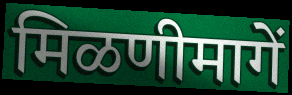
मिळणीमागें